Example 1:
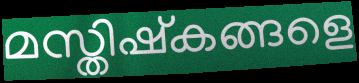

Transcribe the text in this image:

മസ്തിഷ്കങ്ങളെ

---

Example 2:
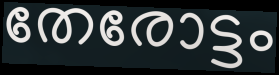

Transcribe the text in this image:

തേരോട്ടം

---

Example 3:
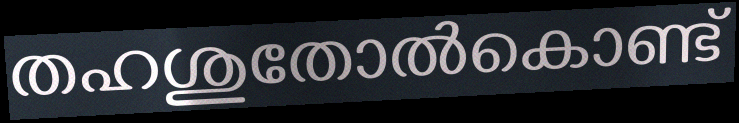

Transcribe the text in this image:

തഹശുതോൽകൊണ്ട്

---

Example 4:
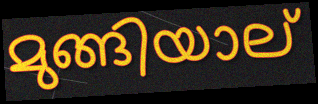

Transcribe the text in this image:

മുങ്ങിയാല്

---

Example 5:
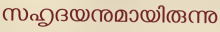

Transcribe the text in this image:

സഹൃദയനുമായിരുന്നു